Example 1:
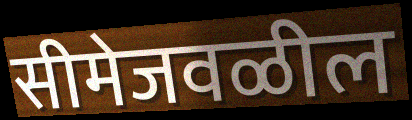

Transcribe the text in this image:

सीमेजवळील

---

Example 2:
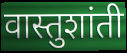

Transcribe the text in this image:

वास्तुशांती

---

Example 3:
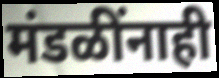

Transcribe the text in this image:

मंडळींनाही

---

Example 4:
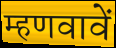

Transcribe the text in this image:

म्हणवावें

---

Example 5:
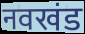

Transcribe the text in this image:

नवखंड